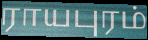
ராயபுரம்